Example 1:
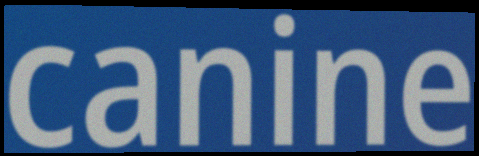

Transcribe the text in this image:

canine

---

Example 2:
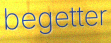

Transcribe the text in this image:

begetter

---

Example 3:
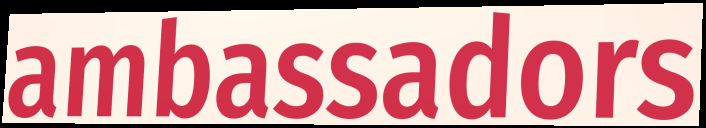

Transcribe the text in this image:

ambassadors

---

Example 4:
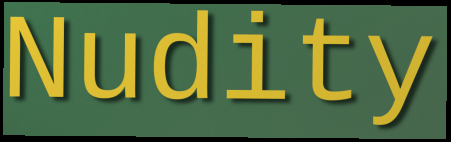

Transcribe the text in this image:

Nudity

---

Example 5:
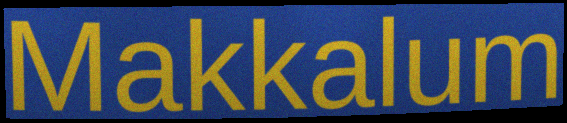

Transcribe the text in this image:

Makkalum